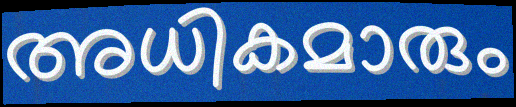
അധികമാരും